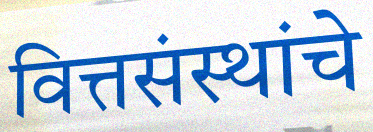
वित्तसंस्थांचे